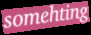
somehting